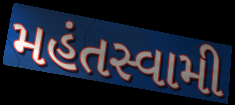
મહંતસ્વામી